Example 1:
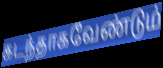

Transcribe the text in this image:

கடந்தாகவேண்டும்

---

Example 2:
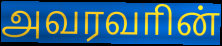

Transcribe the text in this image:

அவரவரின்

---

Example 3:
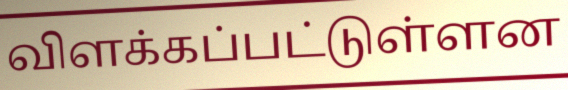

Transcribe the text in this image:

விளக்கப்பட்டுள்ளன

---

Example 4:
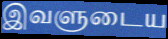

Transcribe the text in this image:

இவளுடைய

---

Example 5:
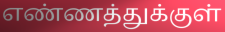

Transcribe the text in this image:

எண்ணத்துக்குள்